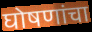
घोषणांचा